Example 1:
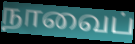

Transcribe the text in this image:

நாவைப்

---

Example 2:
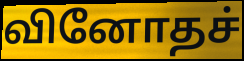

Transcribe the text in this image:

வினோதச்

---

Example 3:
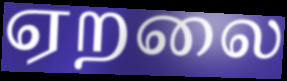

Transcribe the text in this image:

ஏறலை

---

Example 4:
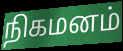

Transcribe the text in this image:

நிகமனம்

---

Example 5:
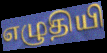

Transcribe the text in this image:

எழுதியி